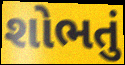
શોભતું